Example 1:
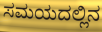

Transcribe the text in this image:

ಸಮಯದಲ್ಲಿನ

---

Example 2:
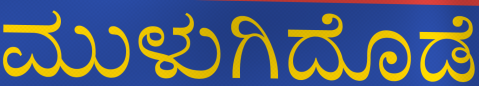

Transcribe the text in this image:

ಮುಳುಗಿದೊಡೆ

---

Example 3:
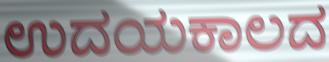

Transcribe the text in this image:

ಉದಯಕಾಲದ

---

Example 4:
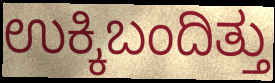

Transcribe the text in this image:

ಉಕ್ಕಿಬಂದಿತ್ತು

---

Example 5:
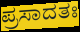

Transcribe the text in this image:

ಪ್ರಸಾದತಃ